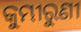
କୁମ୍ଭୀରୁଣୀ